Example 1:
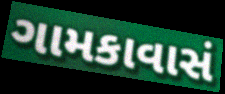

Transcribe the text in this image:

ગામકાવાસં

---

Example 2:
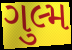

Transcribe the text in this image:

ગુલ્મ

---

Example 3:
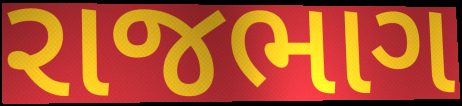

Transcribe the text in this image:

રાજભાગ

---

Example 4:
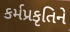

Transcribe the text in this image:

કર્મપ્રકૃતિને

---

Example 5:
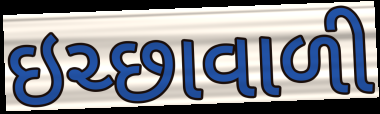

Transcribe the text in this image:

ઇચ્છાવાળી